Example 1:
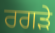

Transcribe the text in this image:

ਰਗੜੇ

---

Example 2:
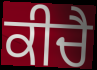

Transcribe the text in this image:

ਕੀਚੈ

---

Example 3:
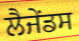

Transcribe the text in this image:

ਲੈਜੇਂਡਸ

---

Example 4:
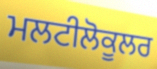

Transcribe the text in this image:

ਮਲਟੀਲੋਕੂਲਰ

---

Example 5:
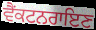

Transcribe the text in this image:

ਵੈਂਕਟਨਰਾਇਣ